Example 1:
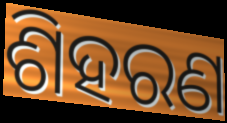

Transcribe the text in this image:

ଶିହରଣ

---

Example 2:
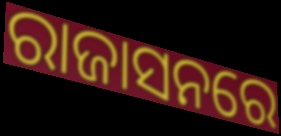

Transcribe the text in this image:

ରାଜାସନରେ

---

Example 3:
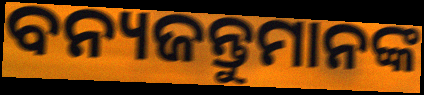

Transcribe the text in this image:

ବନ୍ୟଜନ୍ତୁମାନଙ୍କ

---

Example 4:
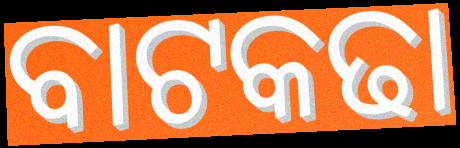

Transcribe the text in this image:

ବାଟକଢା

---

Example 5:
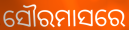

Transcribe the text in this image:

ସୌରମାସରେ